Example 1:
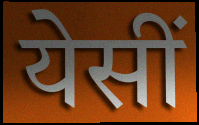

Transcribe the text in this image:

येसीं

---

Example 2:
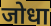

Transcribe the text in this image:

जोधा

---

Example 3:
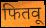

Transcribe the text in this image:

फितवू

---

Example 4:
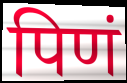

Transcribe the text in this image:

पिणं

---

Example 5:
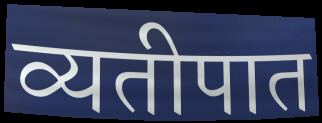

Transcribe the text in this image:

व्यतीपात